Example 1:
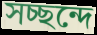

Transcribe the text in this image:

সচ্ছন্দে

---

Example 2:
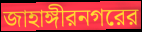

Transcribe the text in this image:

জাহাঙ্গীরনগরের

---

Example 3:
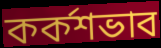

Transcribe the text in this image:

কর্কশভাব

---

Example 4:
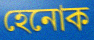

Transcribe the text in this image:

হেনোক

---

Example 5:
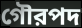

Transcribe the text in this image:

গৌরপদ